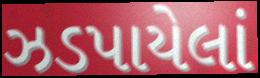
ઝડપાયેલાં